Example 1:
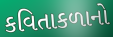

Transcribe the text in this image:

કવિતાકળાનો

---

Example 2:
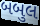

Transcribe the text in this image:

બબુલ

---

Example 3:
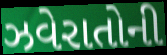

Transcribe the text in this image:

ઝવેરાતોની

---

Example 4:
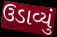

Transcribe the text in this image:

ઉડાવ્યું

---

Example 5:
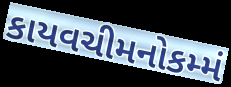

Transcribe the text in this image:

કાયવચીમનોકમ્મં